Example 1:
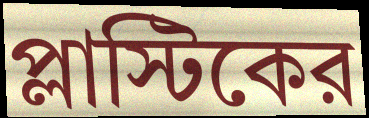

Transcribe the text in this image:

প্লাস্টিকের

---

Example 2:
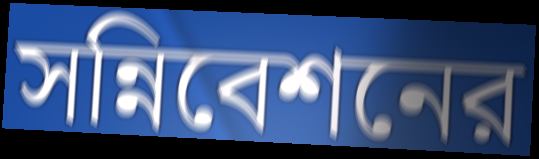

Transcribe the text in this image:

সন্নিবেশনের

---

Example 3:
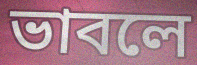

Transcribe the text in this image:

ভাবলে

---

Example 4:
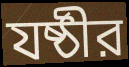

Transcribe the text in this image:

যষ্ঠীর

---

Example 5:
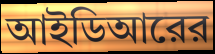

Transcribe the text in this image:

আইডিআরের